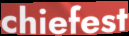
chiefest